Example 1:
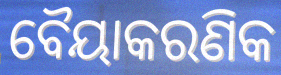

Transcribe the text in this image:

ବୈୟାକରଣିକ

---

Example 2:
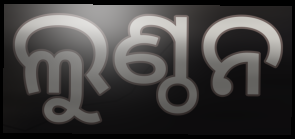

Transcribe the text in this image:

ଲୁଣ୍ଠନ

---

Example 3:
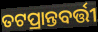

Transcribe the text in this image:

ତଟପ୍ରାନ୍ତବର୍ତ୍ତୀ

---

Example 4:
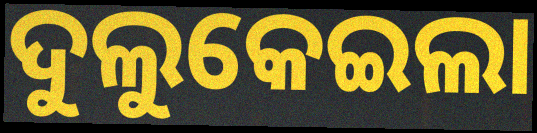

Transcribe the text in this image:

ଦୁଲୁକେଇଲା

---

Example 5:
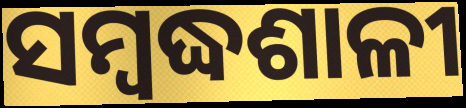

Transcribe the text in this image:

ସମ୍ବଦ୍ଧଶାଳୀ